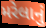
મરેલાનું